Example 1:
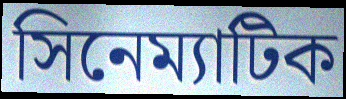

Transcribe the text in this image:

সিনেম্যাটিক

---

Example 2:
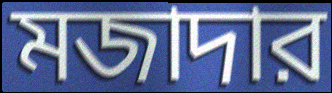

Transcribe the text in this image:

মজাদার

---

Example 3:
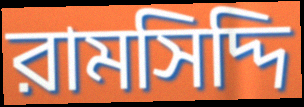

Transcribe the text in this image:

রামসিদ্দি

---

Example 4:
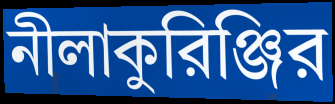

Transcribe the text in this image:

নীলাকুরিঞ্জির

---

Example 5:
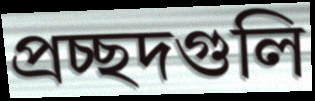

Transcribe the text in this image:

প্রচ্ছদগুলি